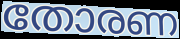
തോരണ